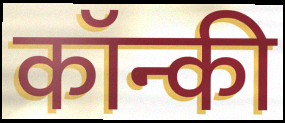
कॉन्की